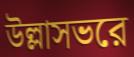
উল্লাসভরে